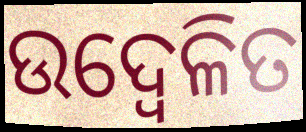
ଉଦ୍ବେଳିତ